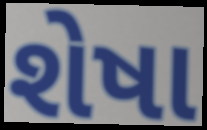
શેષા